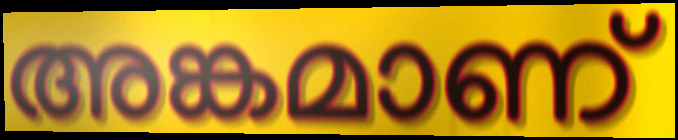
അങ്കമാണ്